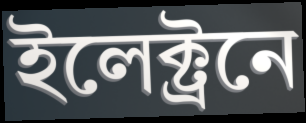
ইলেক্ট্ৰনে